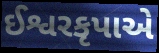
ઈશ્વરકૃપાએ